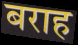
बराह